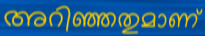
അറിഞ്ഞതുമാണ്